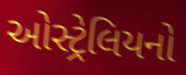
ઓસ્ટ્રેલિયનો